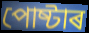
পোষ্টাৰ